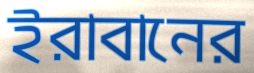
ইরাবানের